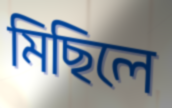
মিছিলে